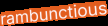
rambunctious